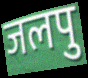
जलपु